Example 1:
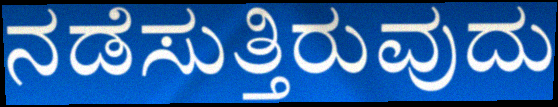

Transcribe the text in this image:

ನಡೆಸುತ್ತಿರುವುದು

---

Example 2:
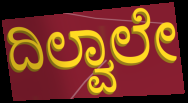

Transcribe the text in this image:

ದಿಲ್ವಾಲೇ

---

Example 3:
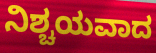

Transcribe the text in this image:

ನಿಶ್ಚಯವಾದ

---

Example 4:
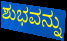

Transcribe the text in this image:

ಶುಭವನ್ನು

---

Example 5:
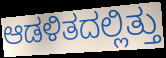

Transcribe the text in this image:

ಆಡಳಿತದಲ್ಲಿತ್ತು